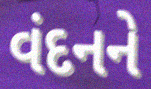
વંદનને